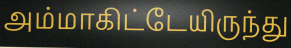
அம்மாகிட்டேயிருந்து